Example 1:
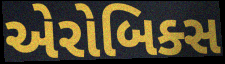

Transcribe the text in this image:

એરોબિક્સ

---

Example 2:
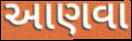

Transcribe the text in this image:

આણવા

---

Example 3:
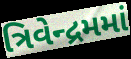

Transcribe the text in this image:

ત્રિવેન્દ્રમમાં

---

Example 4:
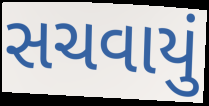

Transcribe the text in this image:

સચવાયું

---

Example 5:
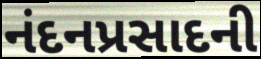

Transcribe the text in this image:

નંદનપ્રસાદની